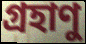
গ্রহাণু